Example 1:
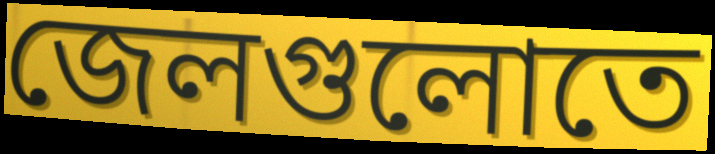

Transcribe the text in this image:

জেলগুলোতে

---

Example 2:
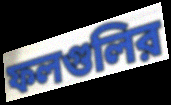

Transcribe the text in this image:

ফলগুলির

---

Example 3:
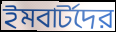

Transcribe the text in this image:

ইমবার্টদের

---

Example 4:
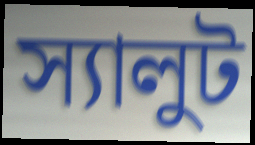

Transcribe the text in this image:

স্যালুট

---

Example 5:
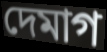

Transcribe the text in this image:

দেমাগ